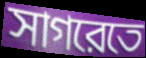
সাগরেতে